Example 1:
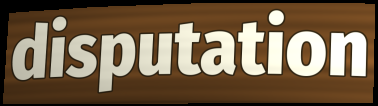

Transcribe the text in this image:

disputation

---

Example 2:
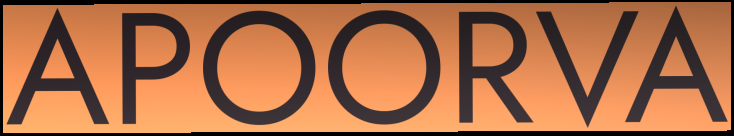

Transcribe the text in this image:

APOORVA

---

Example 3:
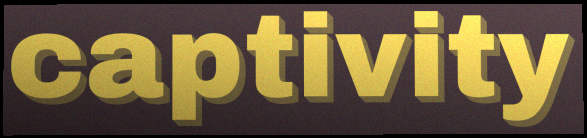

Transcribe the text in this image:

captivity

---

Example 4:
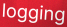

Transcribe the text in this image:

logging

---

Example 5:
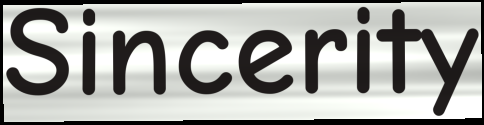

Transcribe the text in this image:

Sincerity